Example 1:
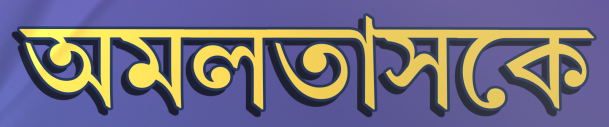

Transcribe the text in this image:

অমলতাসকে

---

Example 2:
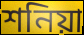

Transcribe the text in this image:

শনিয়া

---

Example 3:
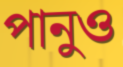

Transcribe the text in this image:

পানুও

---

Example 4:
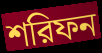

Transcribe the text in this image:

শরিফন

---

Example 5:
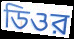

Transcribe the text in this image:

ডিওর